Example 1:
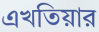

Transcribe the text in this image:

এখতিয়ার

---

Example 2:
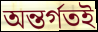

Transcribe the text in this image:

অন্তর্গতই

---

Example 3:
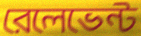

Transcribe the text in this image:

রেলেভেন্ট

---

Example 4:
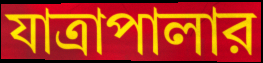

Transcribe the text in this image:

যাত্রাপালার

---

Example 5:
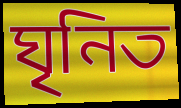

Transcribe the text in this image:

ঘৃনিত